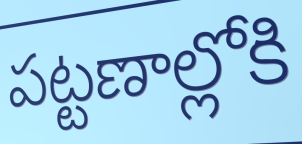
పట్టణాల్లోకి